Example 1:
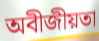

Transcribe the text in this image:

অবীজীয়তা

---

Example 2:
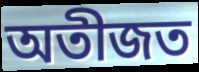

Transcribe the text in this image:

অতীজত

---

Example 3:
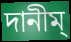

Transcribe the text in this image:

দানীম্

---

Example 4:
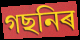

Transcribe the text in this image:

গছনিৰ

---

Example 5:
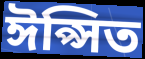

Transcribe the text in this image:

ঈপ্সিত